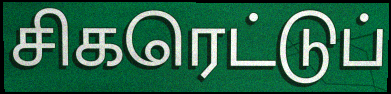
சிகரெட்டுப்